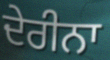
ਦੇਰੀਨਾ